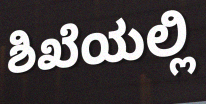
ಶಿಖೆಯಲ್ಲಿ